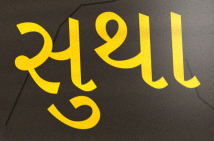
સુથા